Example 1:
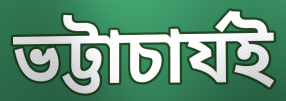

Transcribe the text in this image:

ভট্টাচাৰ্যই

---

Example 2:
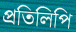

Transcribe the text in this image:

প্ৰতিলিপি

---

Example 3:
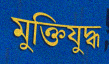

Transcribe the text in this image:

মুক্তিযুদ্ধ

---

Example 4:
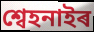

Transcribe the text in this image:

শ্বেহনাইৰ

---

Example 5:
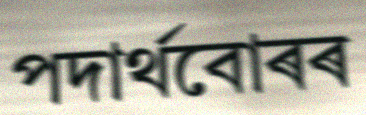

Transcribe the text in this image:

পদাৰ্থবোৰৰ